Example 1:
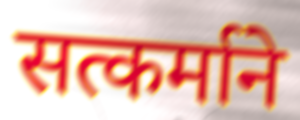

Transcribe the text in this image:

सत्कर्माने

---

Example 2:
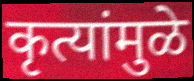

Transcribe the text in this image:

कृत्यांमुळे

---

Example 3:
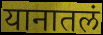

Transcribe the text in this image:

यानातलं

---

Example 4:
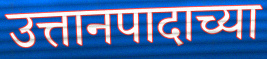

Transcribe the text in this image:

उत्तानपादाच्या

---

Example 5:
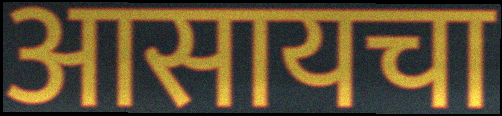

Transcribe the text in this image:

आसायचा